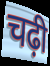
चढ़ी